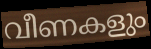
വീണകളും